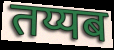
तय्यब